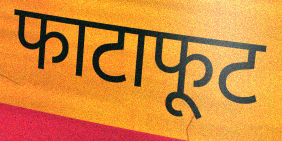
फाटाफूट